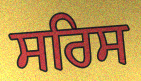
ਸਰਿਸ